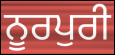
ਨੂਰਪੁਰੀ